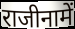
राजीनामें